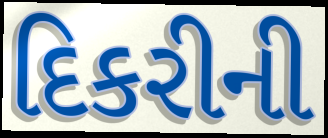
દિકરીની